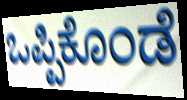
ಒಪ್ಪಿಕೊಂಡೆ